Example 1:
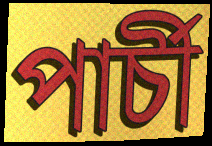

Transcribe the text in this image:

পাৰ্চী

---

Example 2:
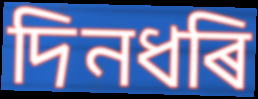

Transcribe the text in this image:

দিনধৰি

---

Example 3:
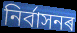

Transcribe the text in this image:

নিৰ্বাসনৰ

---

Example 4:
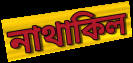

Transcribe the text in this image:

নাথাকিল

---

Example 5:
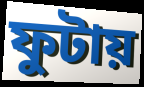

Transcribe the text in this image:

ফুটায়